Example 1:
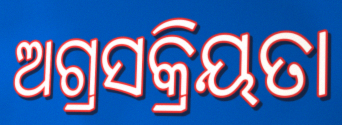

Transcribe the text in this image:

ଅଗ୍ରସକ୍ରିୟତା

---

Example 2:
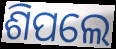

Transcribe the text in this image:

ଶିପଲେ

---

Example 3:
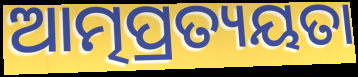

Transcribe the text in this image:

ଆତ୍ମପ୍ରତ୍ୟୟତା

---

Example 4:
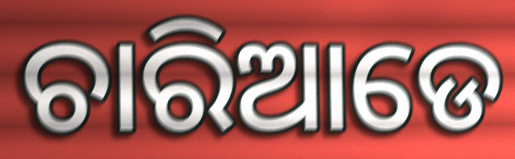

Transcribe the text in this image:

ଚାରିଆଡେ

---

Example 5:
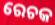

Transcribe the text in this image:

ରେଚକ